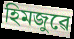
হিমজুৱে